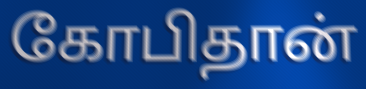
கோபிதான்